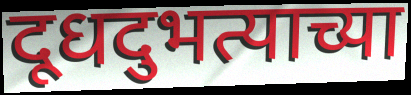
दूधदुभत्याच्या